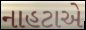
નાહટાએ